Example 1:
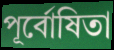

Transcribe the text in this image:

পূর্বোষিতা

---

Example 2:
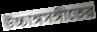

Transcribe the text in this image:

উচ্চাঙ্গসঙ্গীতের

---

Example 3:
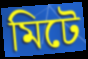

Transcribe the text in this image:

মিটে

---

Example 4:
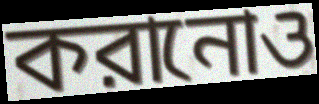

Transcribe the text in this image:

করানোও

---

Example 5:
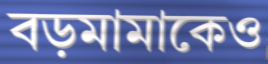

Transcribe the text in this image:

বড়মামাকেও